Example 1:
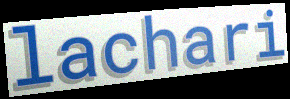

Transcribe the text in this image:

lachari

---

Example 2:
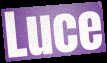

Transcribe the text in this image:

Luce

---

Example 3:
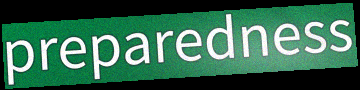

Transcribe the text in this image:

preparedness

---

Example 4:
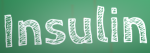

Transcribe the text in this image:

Insulin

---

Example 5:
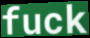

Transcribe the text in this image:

fuck